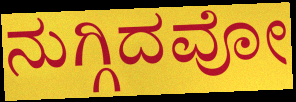
ನುಗ್ಗಿದವೋ